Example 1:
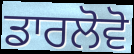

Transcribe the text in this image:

ਡਾਰਲੋਵੋ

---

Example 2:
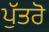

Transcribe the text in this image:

ਪੁੱਤਰੋ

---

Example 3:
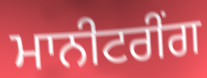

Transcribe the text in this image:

ਮਾਨੀਟਰੀਂਗ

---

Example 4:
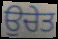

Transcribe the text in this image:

ਉਚੇਤ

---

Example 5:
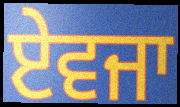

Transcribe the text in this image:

ਏਵਜਾ